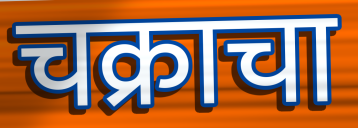
चक्राचा